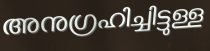
അനുഗ്രഹിച്ചിട്ടുള്ള